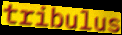
tribulus